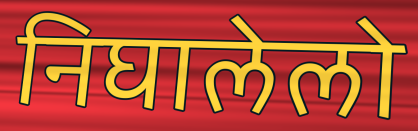
निघालेलो